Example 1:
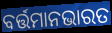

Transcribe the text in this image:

ବର୍ତ୍ତମାନଭାରତ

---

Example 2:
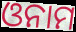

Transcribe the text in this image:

ଓନାମ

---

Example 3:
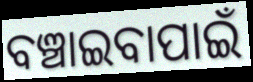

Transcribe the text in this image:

ବଞ୍ଚାଇବାପାଇଁ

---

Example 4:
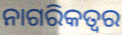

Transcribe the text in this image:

ନାଗରିକତ୍ଵର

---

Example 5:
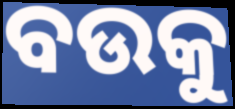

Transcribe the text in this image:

ବଉକୁ